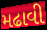
મઢાવી